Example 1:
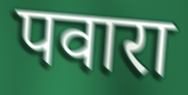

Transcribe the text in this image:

पवारा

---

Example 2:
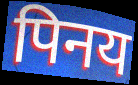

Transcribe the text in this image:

पिनय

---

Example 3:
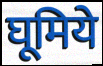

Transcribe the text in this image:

घूमिये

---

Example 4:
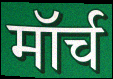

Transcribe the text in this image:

मॉर्च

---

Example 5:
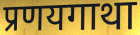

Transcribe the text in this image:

प्रणयगाथा